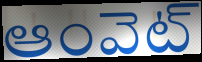
ఆంవెట్